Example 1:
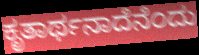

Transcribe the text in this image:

ಕೃತಾರ್ಥನಾದೆನೆಂದು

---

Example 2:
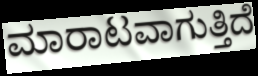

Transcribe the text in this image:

ಮಾರಾಟವಾಗುತ್ತಿದೆ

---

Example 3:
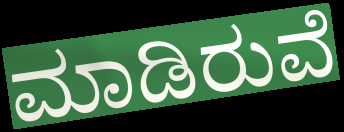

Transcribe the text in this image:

ಮಾಡಿರುವೆ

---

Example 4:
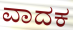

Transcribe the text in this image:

ವಾದಕ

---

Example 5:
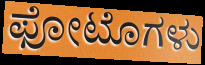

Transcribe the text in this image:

ಫೋಟೊಗಳು